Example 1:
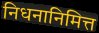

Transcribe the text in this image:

निधनानिमित्त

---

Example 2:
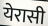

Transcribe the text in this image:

येरासी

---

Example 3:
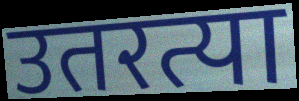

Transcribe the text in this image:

उतरत्या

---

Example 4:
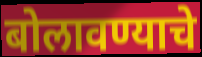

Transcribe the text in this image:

बोलावण्याचे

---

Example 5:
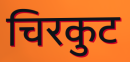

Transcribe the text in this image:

चिरकुट